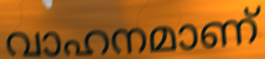
വാഹനമാണ്